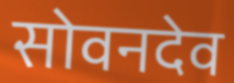
सोवनदेव